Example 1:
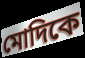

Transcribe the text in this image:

মোদিকে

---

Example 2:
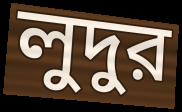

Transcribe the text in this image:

লুদুর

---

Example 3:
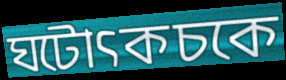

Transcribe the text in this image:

ঘটোৎকচকে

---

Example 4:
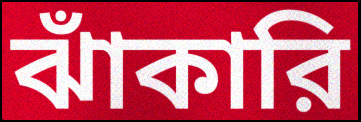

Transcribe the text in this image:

ঝাঁকারি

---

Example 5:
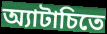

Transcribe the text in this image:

অ্যাটাচিতে